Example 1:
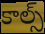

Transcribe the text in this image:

కాల్స్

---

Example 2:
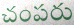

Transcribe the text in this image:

చంపరు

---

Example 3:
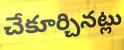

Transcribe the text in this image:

చేకూర్చినట్లు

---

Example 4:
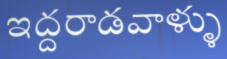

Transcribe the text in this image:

ఇద్దరాడవాళ్ళు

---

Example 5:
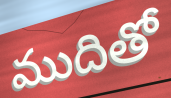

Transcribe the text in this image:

ముదితో